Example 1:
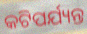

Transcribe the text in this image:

କଟିପର୍ଯ୍ୟନ୍ତ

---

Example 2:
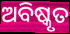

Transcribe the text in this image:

ଅବିଷ୍କୃତ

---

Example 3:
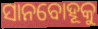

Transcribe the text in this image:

ସାନବୋହୂକୁ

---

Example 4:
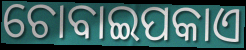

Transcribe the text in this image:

ଚୋବାଇପକାଏ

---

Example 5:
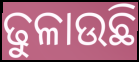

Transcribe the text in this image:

ଢୁଳାଉଛି